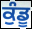
ਕੁੰਡੂ